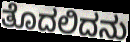
ತೊದಲಿದನು